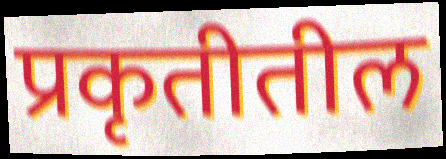
प्रकृतीतील